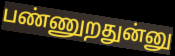
பண்ணுறதுன்னு